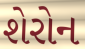
શેરોન